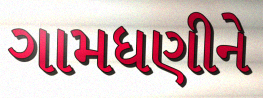
ગામધણીને